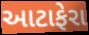
આટાફેરા